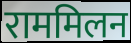
राममिलन